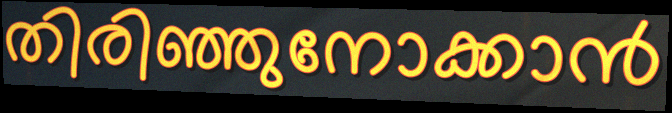
തിരിഞ്ഞുനോക്കാൻ